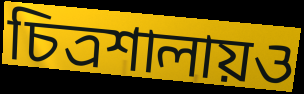
চিত্রশালায়ও